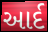
આર્દ